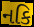
નકિ